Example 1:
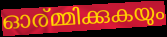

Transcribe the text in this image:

ഓര്മ്മിക്കുകയും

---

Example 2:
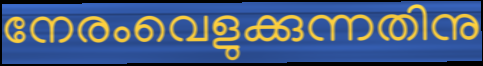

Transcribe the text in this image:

നേരംവെളുക്കുന്നതിനു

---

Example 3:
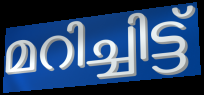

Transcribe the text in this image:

മറിച്ചിട്ട്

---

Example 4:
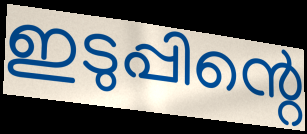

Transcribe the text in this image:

ഇടുപ്പിന്റെ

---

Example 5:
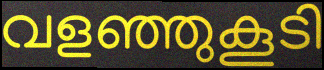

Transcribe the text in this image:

വളഞ്ഞുകൂടി